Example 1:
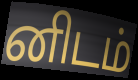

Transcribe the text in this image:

னிடம்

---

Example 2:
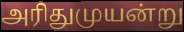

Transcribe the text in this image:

அரிதுமுயன்று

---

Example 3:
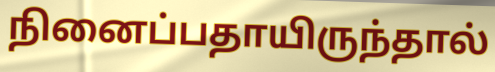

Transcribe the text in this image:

நினைப்பதாயிருந்தால்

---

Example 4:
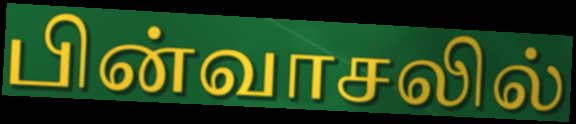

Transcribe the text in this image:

பின்வாசலில்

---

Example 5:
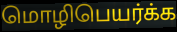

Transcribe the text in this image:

மொழிபெயர்க்க